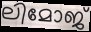
ലിമോജ്